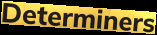
Determiners